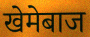
खेमेबाज